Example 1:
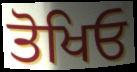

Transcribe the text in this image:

ਤੋਖਿਓ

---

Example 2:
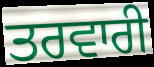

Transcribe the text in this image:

ਤਰਵਾਰੀ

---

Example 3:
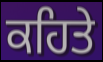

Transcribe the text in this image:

ਕਹਿਤੇ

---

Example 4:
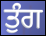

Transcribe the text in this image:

ਤੁੰਗ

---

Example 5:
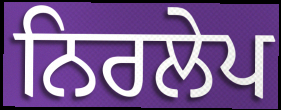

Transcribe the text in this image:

ਨਿਰਲੇਪ